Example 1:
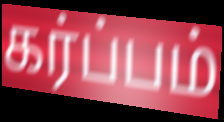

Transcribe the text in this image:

கர்ப்பம்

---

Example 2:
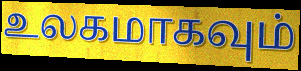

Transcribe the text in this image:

உலகமாகவும்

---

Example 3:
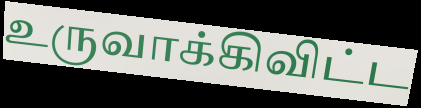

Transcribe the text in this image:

உருவாக்கிவிட்ட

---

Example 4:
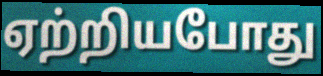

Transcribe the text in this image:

ஏற்றியபோது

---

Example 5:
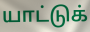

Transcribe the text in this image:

யாட்டுக்